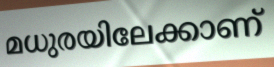
മധുരയിലേക്കാണ്